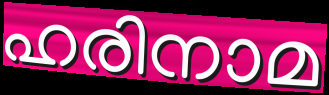
ഹരിനാമ